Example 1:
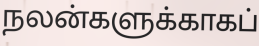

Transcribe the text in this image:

நலன்களுக்காகப்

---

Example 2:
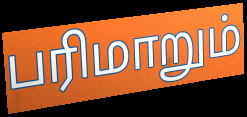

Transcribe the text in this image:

பரிமாறும்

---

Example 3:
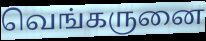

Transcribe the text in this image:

வெங்கருனை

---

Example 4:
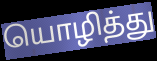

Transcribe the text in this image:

யொழித்து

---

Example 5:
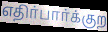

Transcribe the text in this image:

எதிர்பார்க்குற